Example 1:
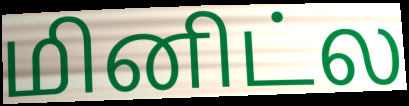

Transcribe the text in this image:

மினிட்ல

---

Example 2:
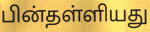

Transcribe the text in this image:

பின்தள்ளியது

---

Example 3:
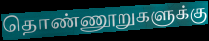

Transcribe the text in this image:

தொண்ணூறுகளுக்கு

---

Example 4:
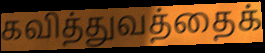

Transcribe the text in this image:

கவித்துவத்தைக்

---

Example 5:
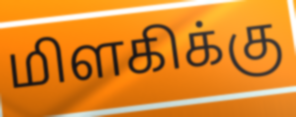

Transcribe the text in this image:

மிளகிக்கு